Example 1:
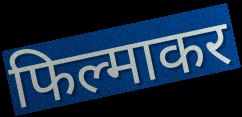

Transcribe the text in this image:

फिल्माकर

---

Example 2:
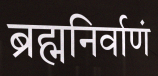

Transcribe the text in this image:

ब्रह्मनिर्वाणं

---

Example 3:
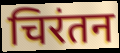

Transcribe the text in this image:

चिरंतन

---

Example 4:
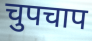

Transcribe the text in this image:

चुपचाप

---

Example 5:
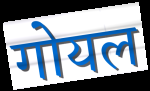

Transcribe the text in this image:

गोयल